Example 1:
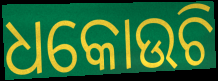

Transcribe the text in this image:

ଧକୋଉଚି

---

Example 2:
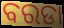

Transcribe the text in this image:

ବରଡା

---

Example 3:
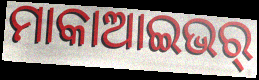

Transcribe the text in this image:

ମାକାଆଇଭର୍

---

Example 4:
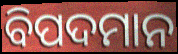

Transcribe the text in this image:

ବିପଦମାନ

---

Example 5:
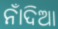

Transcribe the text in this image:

ନାଁଦିଆ